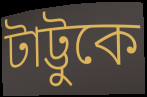
টাট্টুকে